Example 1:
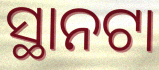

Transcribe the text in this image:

ସ୍ଥାନଟା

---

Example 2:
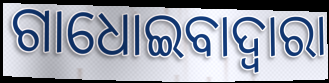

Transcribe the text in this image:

ଗାଧୋଇବାଦ୍ଵାରା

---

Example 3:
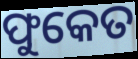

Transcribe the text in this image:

ଫୁକେତ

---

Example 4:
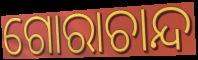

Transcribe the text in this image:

ଗୋରାଚାନ୍ଦ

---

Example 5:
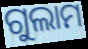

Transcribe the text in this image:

ଗୁଲାମ